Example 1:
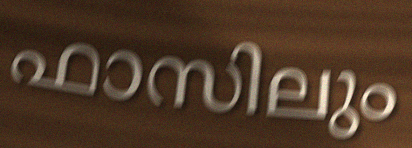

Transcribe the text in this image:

ഫാസിലും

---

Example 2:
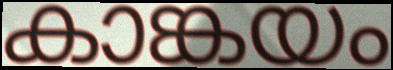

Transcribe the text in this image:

കാങ്കയം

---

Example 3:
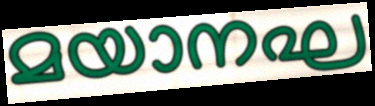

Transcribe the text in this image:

മയാനഘ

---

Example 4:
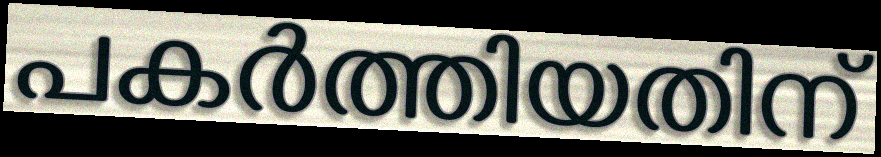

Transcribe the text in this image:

പകർത്തിയതിന്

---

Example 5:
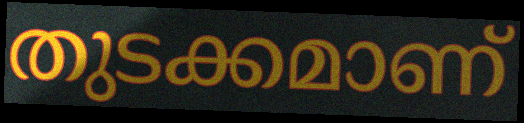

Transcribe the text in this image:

തുടക്കമാണ്